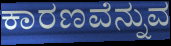
ಕಾರಣವೆನ್ನುವ